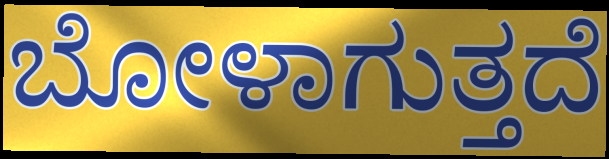
ಬೋಳಾಗುತ್ತದೆ